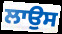
ਲਾਉਸ